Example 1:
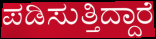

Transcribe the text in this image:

ಪಡಿಸುತ್ತಿದ್ದಾರೆ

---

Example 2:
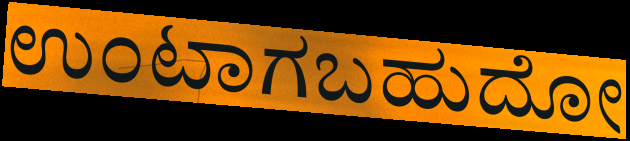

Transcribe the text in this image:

ಉಂಟಾಗಬಹುದೋ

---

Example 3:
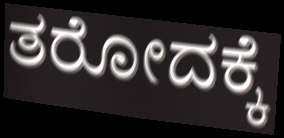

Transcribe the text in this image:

ತರೋದಕ್ಕೆ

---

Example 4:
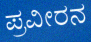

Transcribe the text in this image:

ಪ್ರವೀರನ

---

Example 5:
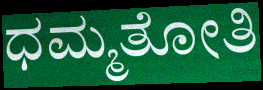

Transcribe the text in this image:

ಧಮ್ಮತೋತಿ